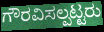
ಗೌರವಿಸಲ್ಪಟ್ಟರು